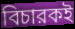
বিচারকই